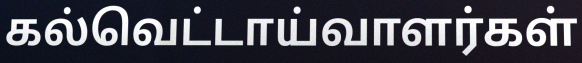
கல்வெட்டாய்வாளர்கள்